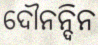
ଦୌନନ୍ଦିନ